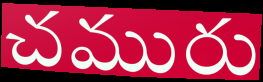
చమురు